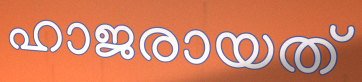
ഹാജരായത്